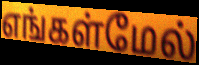
எங்கள்மேல்